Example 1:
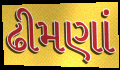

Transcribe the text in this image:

ઢીમણાં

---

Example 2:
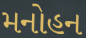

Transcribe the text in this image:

મનોહન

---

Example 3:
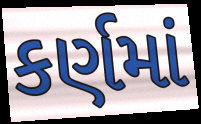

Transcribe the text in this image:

કર્ણમાં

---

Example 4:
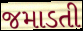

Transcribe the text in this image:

જમાડતી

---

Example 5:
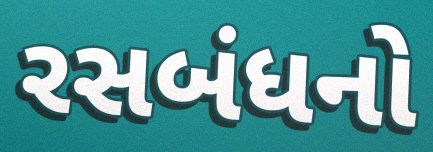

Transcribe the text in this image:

રસબંધનો